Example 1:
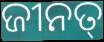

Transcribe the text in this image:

ଜୀନତ୍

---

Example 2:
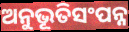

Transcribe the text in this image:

ଅନୁଭୂତିସଂପନ୍ନ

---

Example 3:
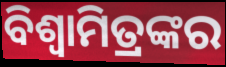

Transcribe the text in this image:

ବିଶ୍ବାମିତ୍ରଙ୍କର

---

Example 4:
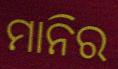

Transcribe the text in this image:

ମାନିର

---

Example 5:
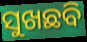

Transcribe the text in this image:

ସୁଖଛବି